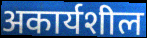
अकार्यशील